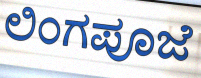
ಲಿಂಗಪೂಜೆ